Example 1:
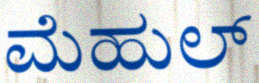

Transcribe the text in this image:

ಮೆಹುಲ್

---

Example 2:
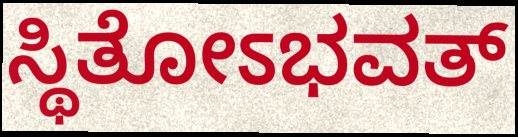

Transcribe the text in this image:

ಸ್ಥಿತೋಽಭವತ್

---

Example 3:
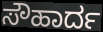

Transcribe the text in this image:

ಸೌಹಾರ್ದ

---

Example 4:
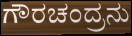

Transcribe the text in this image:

ಗೌರಚಂದ್ರನು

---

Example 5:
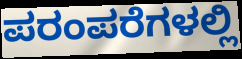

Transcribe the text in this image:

ಪರಂಪರೆಗಳಲ್ಲಿ